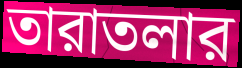
তারাতলার